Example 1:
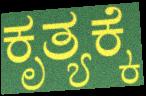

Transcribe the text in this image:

ಕೃತ್ಯಕ್ಕೆ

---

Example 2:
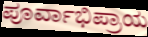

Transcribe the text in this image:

ಪೂರ್ವಾಭಿಪ್ರಾಯ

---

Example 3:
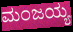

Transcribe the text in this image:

ಮಂಜಯ್ಯ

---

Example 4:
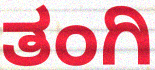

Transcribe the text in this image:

ತಂಗಿ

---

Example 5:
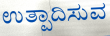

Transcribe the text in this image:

ಉತ್ಪಾದಿಸುವ